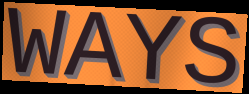
WAYS